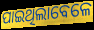
ପାଇଥିଲାବେଳେ